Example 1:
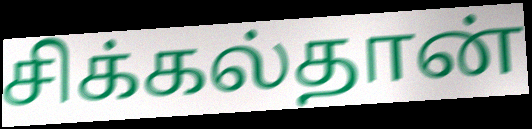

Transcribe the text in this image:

சிக்கல்தான்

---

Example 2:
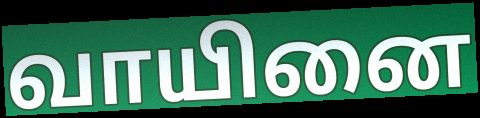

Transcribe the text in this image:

வாயினை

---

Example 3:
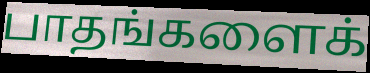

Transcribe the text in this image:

பாதங்களைக்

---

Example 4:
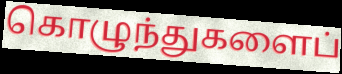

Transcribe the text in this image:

கொழுந்துகளைப்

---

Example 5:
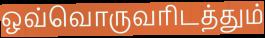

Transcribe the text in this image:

ஒவ்வொருவரிடத்தும்